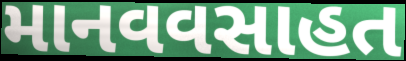
માનવવસાહત